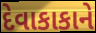
દેવાકાકાને